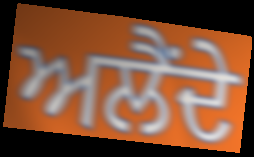
ਅਲੈਂਦੇ